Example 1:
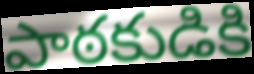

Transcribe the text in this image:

పాఠకుడికి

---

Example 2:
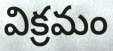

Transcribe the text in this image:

విక్రమం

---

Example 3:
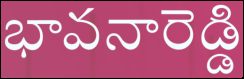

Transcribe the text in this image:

భావనారెడ్డి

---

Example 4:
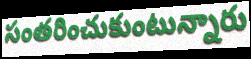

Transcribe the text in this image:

సంతరించుకుంటున్నారు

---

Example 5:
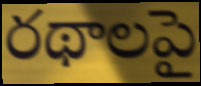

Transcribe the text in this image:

రథాలపై